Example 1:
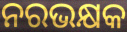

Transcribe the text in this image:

ନରଭକ୍ଷକ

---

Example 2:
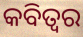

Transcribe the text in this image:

କବିତ୍ଵର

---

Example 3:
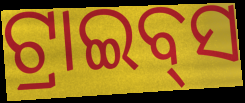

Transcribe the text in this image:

ଟ୍ରାଇବ୍‌ସ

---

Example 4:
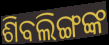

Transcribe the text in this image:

ଶିବଲିଙ୍ଗଙ୍କ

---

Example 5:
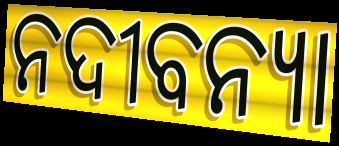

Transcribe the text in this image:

ନଦୀବନ୍ୟା